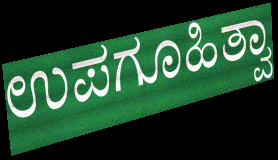
ಉಪಗೂಹಿತ್ವಾ